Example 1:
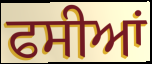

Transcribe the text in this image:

ਫਸੀਆਂ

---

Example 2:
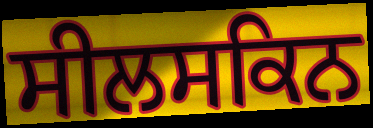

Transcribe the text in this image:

ਸੀਲਸਕਿਨ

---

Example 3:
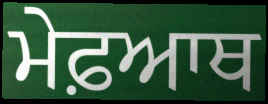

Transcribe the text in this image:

ਮੇਫ਼ਆਥ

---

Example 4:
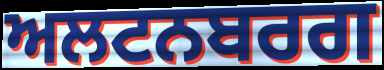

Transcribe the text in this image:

ਅਲਟਨਬਰਗ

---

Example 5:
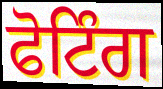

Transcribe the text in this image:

ਫੋਟਿੰਗ